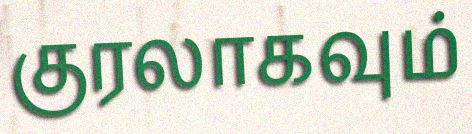
குரலாகவும்